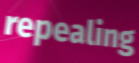
repealing